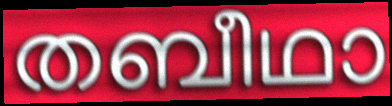
തബീഥാ